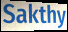
Sakthy